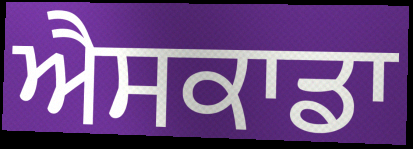
ਐਸਕਾਡਾ